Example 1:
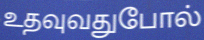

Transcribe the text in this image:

உதவுவதுபோல்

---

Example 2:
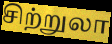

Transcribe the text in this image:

சிற்றுலா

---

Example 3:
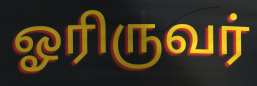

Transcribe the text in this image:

ஓரிருவர்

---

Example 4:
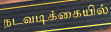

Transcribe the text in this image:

நடவடிக்கையில்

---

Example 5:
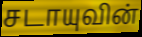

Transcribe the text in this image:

சடாயுவின்